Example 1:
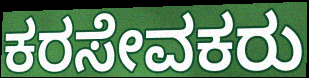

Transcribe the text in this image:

ಕರಸೇವಕರು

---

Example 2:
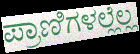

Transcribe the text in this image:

ಪ್ರಾಣಿಗಳಲ್ಲೆಲ್ಲ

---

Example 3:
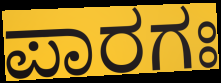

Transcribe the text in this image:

ಪಾರಗಃ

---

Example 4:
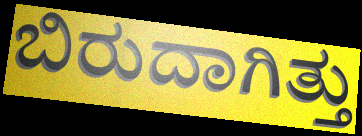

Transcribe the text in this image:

ಬಿರುದಾಗಿತ್ತು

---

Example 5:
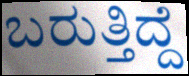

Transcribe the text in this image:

ಬರುತ್ತಿದ್ದೆ